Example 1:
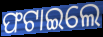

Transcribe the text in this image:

ଫଟାଇଲେ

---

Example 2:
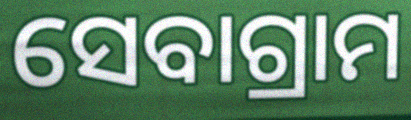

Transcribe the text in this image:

ସେବାଗ୍ରାମ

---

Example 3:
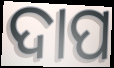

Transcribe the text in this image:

ଦାପ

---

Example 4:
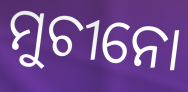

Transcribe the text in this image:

ମୁଚୀନୋ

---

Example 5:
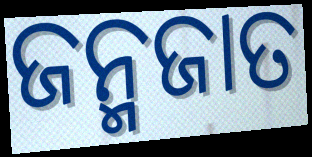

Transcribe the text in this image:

ଜନ୍ମଜାତ